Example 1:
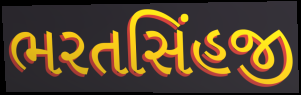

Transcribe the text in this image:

ભરતસિંહજી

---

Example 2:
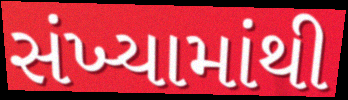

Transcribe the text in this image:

સંખ્યામાંથી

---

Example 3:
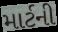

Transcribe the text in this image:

માર્ટની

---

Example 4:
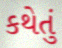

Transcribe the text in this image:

કથેતું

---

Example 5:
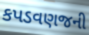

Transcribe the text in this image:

કપડવણજની